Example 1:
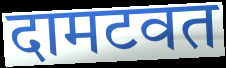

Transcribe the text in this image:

दामटवत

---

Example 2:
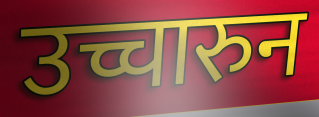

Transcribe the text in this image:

उच्चारुन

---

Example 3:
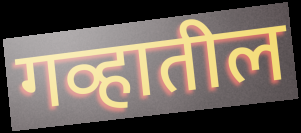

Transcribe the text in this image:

गव्हातील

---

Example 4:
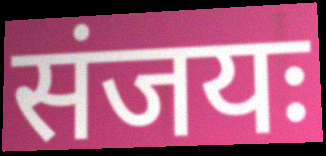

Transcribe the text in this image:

संजयः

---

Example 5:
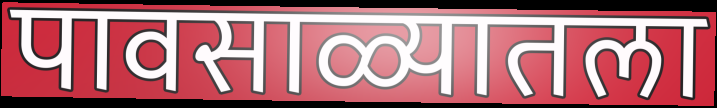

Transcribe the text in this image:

पावसाळ्यातला